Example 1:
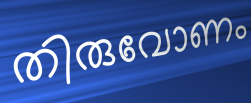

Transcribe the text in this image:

തിരുവോണം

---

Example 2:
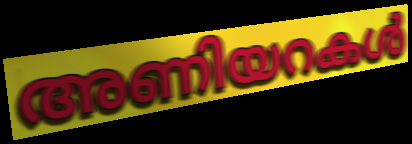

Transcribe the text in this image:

അണിയറകൾ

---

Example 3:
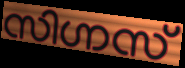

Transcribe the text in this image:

സിഗ്നസ്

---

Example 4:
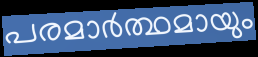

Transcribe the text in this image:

പരമാർത്ഥമായും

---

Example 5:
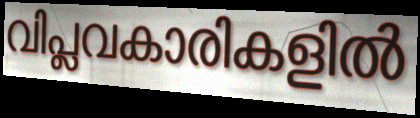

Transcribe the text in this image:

വിപ്ലവകാരികളിൽ